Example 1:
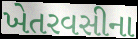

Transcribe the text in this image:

ખેતરવસીના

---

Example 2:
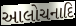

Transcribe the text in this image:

આલોચનાદિ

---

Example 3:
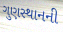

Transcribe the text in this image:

ગુણસ્થાનની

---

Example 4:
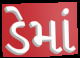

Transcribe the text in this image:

ડેમાં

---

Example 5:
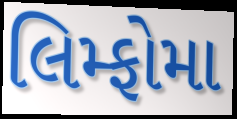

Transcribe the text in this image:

લિમ્ફોમા